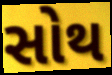
સોથ